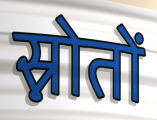
स्नोतों